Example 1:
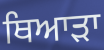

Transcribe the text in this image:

ਥਿਆੜਾ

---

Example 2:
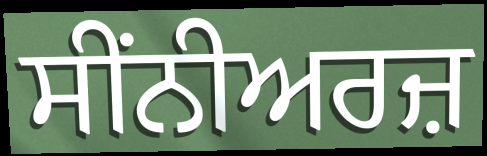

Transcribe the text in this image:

ਸੀਂਨੀਅਰਜ਼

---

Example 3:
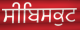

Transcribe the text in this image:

ਸੀਬਿਸਕੁਟ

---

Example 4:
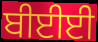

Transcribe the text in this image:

ਬੀਈਈ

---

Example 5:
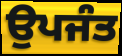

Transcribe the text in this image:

ਉਪਜੰਤ